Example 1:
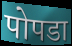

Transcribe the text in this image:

पोपडा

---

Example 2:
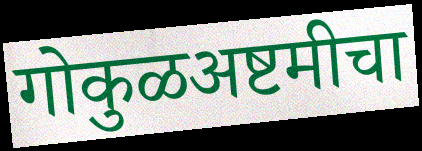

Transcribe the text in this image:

गोकुळअष्टमीचा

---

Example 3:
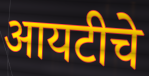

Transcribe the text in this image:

आयटीचे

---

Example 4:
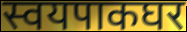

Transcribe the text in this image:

स्वयपाकघर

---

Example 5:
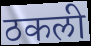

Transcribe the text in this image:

ठकली